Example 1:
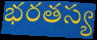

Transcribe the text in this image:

భరతస్య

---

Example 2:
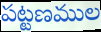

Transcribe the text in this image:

పట్టణముల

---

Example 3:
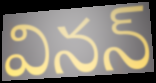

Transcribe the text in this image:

వినన్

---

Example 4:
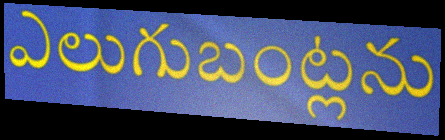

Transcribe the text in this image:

ఎలుగుబంట్లను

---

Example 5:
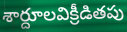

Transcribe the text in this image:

శార్దూలవిక్రీడితపు